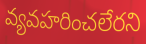
వ్యవహరించలేరని